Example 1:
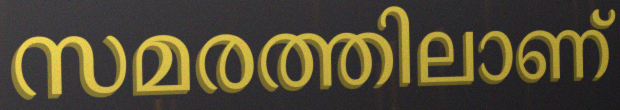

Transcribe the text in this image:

സമരത്തിലാണ്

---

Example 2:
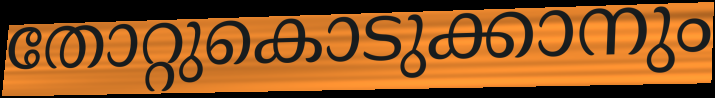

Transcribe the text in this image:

തോറ്റുകൊടുക്കാനും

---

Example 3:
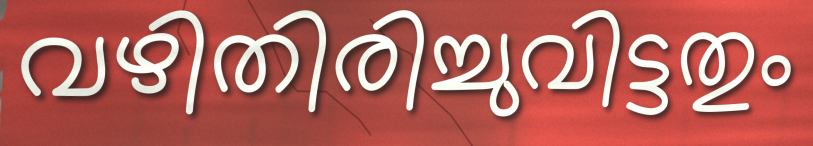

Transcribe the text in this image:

വഴിതിരിച്ചുവിട്ടതും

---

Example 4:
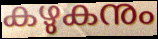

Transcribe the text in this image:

കഴുകനും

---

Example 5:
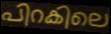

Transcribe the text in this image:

പിറകിലെ